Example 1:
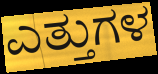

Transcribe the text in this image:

ಎತ್ತುಗಳ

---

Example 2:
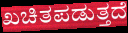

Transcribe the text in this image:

ಖಚಿತಪಡುತ್ತದೆ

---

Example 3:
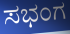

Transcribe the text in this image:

ಸಭಂಗ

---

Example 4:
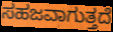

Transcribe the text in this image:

ಸಹಜವಾಗುತ್ತದೆ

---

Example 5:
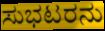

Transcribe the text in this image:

ಸುಭಟರನು